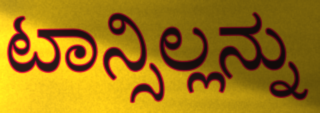
ಟಾನ್ಸಿಲ್ಲನ್ನು